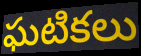
ఘటికలు